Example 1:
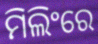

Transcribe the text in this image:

ମିଲିଂରେ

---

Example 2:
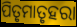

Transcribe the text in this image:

ପିତୃମାତୃହରା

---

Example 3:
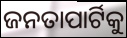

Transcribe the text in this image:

ଜନତାପାର୍ଟିକୁ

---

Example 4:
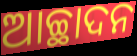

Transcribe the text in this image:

ଆଚ୍ଛାଦନ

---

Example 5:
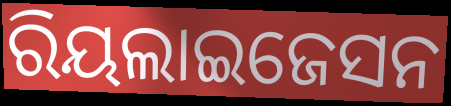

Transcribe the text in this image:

ରିୟଲାଇଜେସନ